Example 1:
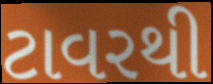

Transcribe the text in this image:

ટાવરથી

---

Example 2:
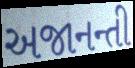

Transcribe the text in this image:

અજાનન્તી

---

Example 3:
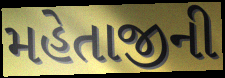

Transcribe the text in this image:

મહેતાજીની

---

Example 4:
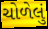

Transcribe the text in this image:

ચોળેલું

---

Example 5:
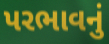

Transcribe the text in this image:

પરભાવનું